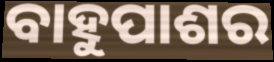
ବାହୁପାଶର